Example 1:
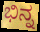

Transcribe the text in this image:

ಭಿನ್ನ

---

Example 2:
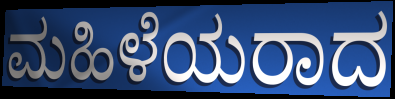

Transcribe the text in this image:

ಮಹಿಳೆಯರಾದ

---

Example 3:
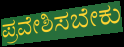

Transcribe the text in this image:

ಪ್ರವೇಶಿಸಬೇಕು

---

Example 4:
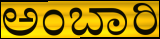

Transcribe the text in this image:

ಅಂಬಾರಿ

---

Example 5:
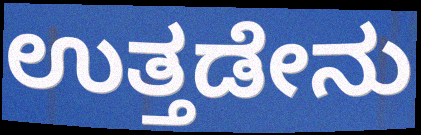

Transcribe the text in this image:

ಉತ್ತಡೇನು